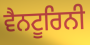
ਵੈਨਟੂਰਿਨੀ